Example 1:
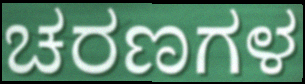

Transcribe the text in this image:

ಚರಣಗಳ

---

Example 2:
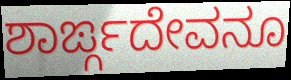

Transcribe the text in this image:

ಶಾರ್ಙ್ಗದೇವನೂ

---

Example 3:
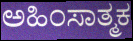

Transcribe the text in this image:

ಅಹಿಂಸಾತ್ಮಕ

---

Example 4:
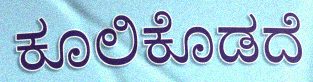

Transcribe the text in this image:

ಕೂಲಿಕೊಡದೆ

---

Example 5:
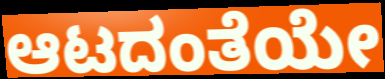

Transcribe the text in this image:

ಆಟದಂತೆಯೇ